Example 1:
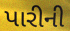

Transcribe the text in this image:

પારીની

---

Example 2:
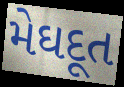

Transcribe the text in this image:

મેઘદૂત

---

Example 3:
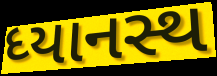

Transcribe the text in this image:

ધ્યાનસ્થ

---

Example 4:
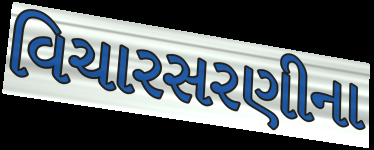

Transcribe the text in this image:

વિચારસરણીના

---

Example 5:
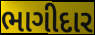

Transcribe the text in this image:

ભાગીદાર